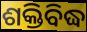
ଶକ୍ତିବିଦ୍ଧ